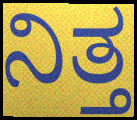
ನಿತ್ತ